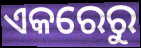
ଏକରେରୁ